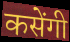
कसेंगी